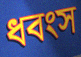
ধবংস